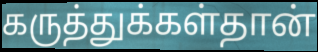
கருத்துக்கள்தான்